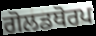
ਗੋਲਡਥੋਰਪ